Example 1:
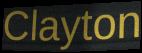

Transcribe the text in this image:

Clayton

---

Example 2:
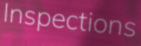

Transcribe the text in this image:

Inspections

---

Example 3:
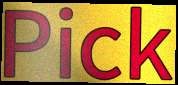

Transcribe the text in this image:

Pick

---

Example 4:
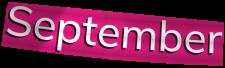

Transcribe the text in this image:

September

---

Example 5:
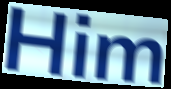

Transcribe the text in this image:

Him